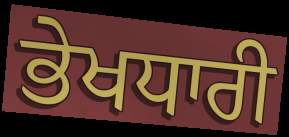
ਭੇਖਧਾਰੀ